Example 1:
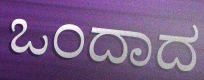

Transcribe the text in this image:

ಒಂದಾದ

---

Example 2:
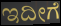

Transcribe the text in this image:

ಇದೀಗೆ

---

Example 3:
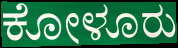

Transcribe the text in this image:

ಕೋಳೂರು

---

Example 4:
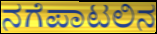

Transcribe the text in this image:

ನಗೆಪಾಟಲಿನ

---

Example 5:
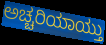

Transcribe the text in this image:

ಅಚ್ಚರಿಯಾಯ್ತು